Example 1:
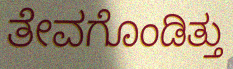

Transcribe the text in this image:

ತೇವಗೊಂಡಿತ್ತು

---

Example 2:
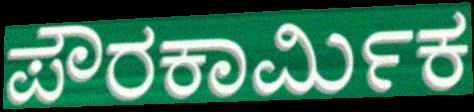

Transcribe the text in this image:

ಪೌರಕಾರ್ಮಿಕ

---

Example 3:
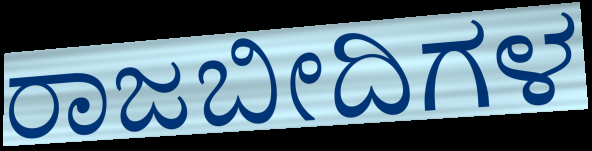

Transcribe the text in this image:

ರಾಜಬೀದಿಗಳ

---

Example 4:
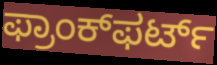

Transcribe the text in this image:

ಫ್ರಾಂಕ್‌ಫರ್ಟ್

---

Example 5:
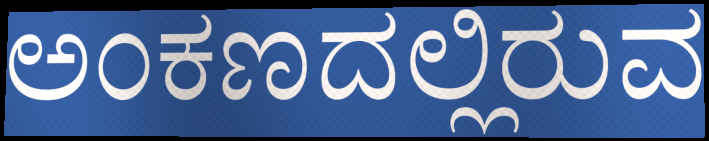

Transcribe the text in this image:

ಅಂಕಣದಲ್ಲಿರುವ